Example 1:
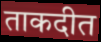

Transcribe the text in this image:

ताकदीत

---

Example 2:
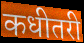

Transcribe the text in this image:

कधीतरी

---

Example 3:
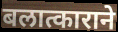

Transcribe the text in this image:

बलात्काराने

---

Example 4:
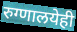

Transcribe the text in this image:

रुग्णालयेही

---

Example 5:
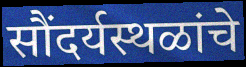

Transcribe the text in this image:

सौंदर्यस्थळांचे